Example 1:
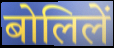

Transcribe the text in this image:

बोलिलें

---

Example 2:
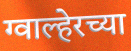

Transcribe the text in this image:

ग्वाल्हेरच्या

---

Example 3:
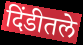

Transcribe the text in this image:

दिंडीतले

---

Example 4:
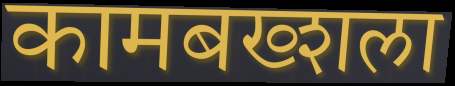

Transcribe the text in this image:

कामबख्शला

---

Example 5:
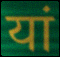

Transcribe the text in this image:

यां